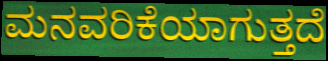
ಮನವರಿಕೆಯಾಗುತ್ತದೆ